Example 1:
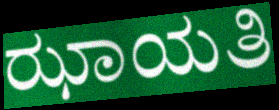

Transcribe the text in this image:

ಝಾಯತಿ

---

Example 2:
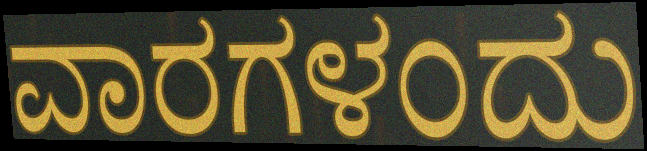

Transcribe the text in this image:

ವಾರಗಳಂದು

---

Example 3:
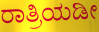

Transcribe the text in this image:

ರಾತ್ರಿಯಡೀ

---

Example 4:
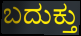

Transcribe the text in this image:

ಬದುಕ್ತು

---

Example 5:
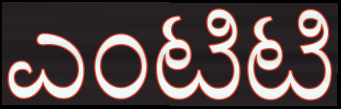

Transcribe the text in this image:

ಎಂಟಿಟಿ